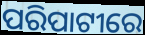
ପରିପାଟୀରେ